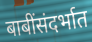
बाबींसंदर्भात